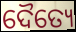
ଦୈତ୍ୟେ